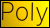
Poly